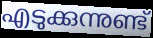
എടുക്കുന്നുണ്ട്